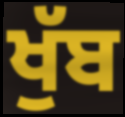
ਖੁੱਬ